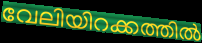
വേലിയിറക്കത്തിൽ